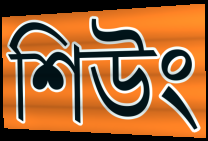
শিউং